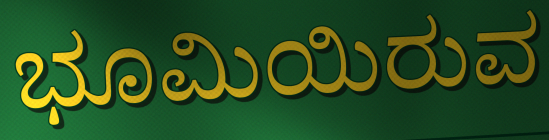
ಭೂಮಿಯಿರುವ